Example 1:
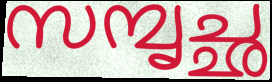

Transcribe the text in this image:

സമ്പൃച്ഛ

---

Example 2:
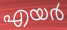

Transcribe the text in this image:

എയർ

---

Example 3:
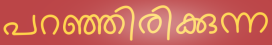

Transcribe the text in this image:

പറഞ്ഞിരിക്കുന്ന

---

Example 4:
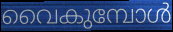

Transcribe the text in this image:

വൈകുമ്പോൾ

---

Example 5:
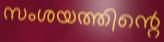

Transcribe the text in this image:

സംശയത്തിന്റെ